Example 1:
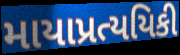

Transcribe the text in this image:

માયાપ્રત્યયિકી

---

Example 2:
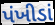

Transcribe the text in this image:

પંખીડાં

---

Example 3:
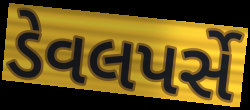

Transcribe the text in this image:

ડેવલપર્સે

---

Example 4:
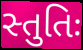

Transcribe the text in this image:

સ્તુતિઃ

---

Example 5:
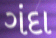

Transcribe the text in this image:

ગંદા